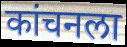
कांचनला